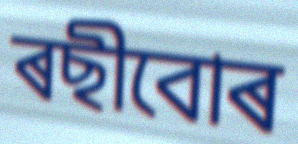
ৰছীবোৰ